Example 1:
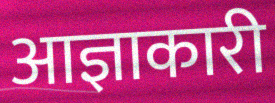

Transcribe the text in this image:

आज्ञाकारी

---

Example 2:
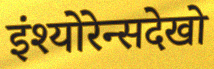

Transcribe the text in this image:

इंश्योरेन्सदेखो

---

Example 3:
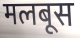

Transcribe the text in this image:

मलबूस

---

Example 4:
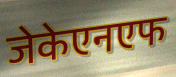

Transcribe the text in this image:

जेकेएनएफ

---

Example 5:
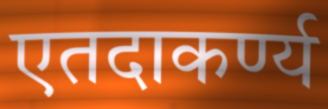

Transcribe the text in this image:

एतदाकर्ण्य